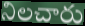
నిలచారు